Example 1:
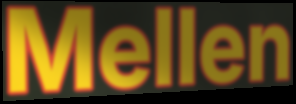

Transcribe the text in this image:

Mellen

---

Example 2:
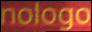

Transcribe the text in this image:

nologo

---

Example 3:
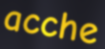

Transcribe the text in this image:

acche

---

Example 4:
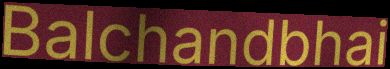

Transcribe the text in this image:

Balchandbhai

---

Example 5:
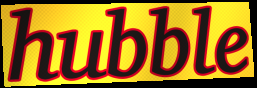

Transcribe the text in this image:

hubble